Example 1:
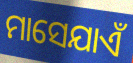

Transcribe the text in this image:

ମାସେଯାଏଁ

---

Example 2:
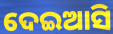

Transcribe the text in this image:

ଦେଇଆସି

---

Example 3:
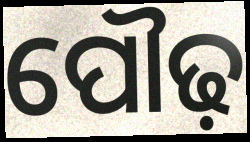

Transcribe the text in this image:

ପୌଢ଼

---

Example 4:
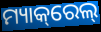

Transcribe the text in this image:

ମ୍ୟାକ୍‌ରେଲ୍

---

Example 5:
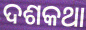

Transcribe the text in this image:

ଦଶକଥା